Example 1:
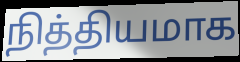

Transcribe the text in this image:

நித்தியமாக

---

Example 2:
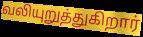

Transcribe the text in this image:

வலியுறுத்துகிறார்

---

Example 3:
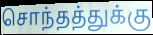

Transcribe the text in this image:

சொந்தத்துக்கு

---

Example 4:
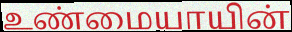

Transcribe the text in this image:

உண்மையாயின்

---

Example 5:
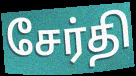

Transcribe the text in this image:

சேர்தி